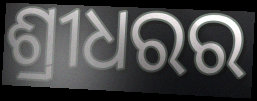
ଶ୍ରୀଧରର